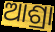
ଆଶ୍ରା